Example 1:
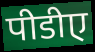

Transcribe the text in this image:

पीडीए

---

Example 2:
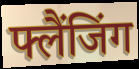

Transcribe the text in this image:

फ्लैंजिंग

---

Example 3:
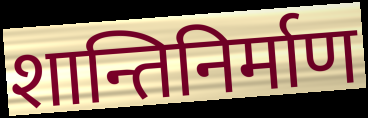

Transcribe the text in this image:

शान्तिनिर्माण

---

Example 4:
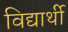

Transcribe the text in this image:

विद्यार्थी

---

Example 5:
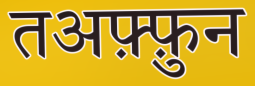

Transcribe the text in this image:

तअफ़्फ़ुन